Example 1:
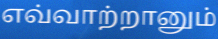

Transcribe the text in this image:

எவ்வாற்றானும்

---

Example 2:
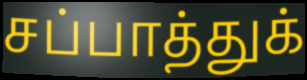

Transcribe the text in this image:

சப்பாத்துக்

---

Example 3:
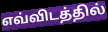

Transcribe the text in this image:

எவ்விடத்தில்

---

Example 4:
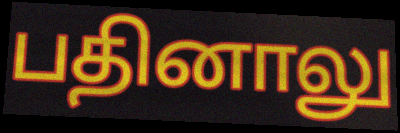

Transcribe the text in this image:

பதினாலு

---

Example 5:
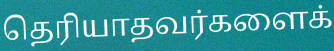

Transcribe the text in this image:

தெரியாதவர்களைக்